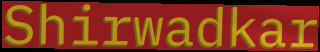
Shirwadkar